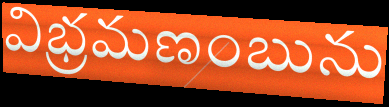
విభ్రమణంబును